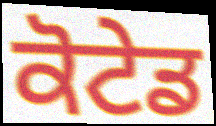
ਕੋਟੇਡ